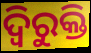
ଦ୍ୱିରୁକ୍ତି